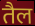
तैल